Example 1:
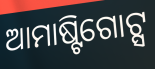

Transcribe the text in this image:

ଆମାଷ୍ଟିଗୋଟ୍ସ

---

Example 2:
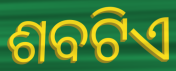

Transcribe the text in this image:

ଶବଟିଏ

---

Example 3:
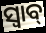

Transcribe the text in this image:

ସ୍ବାବ୍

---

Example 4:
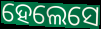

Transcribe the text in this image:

ହେଲେସେ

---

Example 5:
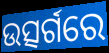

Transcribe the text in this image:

ଉତ୍ସର୍ଗରେ